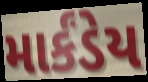
માર્કંડેય